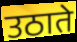
उठाते